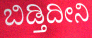
ಬಿಡ್ತಿದೀನಿ